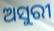
ଅସୁରୀ